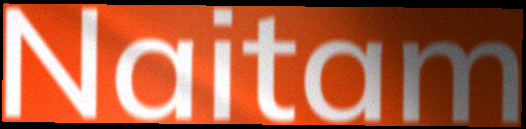
Naitam